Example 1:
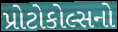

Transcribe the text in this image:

પ્રોટોકોલ્સનો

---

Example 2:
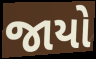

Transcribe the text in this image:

જાયો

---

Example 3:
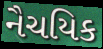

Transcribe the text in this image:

નૈચયિક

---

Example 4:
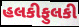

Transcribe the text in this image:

હલકીફુલકી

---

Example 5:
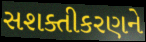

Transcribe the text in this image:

સશક્તીકરણને